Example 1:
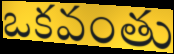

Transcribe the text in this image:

ఒకవంతు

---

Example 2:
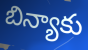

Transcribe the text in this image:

బిన్యాకు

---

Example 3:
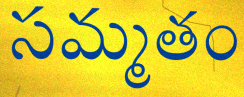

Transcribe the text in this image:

సమ్మతం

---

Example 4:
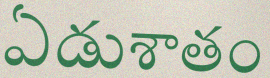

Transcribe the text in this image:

ఏడుశాతం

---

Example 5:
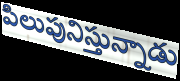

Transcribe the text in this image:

పిలుపునిస్తున్నాడు